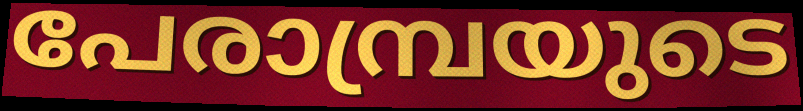
പേരാമ്പ്രയുടെ